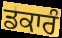
ਡਕਾਰੰ